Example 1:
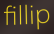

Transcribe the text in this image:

fillip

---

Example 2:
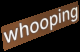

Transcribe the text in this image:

whooping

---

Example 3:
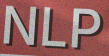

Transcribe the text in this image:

NLP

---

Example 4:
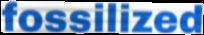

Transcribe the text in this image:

fossilized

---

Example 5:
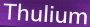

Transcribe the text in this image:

Thulium